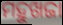
ମହୁଖଜା